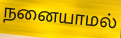
நனையாமல்